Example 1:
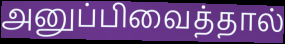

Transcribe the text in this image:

அனுப்பிவைத்தால்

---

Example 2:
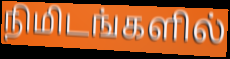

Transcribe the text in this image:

நிமிடங்களில்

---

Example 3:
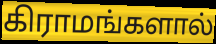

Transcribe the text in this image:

கிராமங்களால்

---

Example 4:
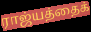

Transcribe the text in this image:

ராஜ்யத்தைக்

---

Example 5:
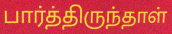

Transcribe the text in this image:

பார்த்திருந்தாள்